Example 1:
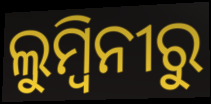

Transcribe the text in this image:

ଲୁମ୍ବିନୀରୁ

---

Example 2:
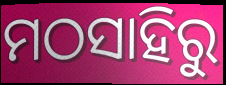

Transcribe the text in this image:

ମଠସାହିରୁ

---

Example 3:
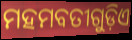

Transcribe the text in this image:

ମହମବତୀଗୁଡ଼ିଏ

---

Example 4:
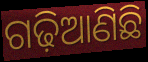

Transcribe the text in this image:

ଗଢ଼ିଆଣିଛି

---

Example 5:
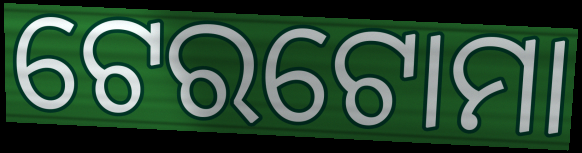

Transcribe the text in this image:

ଟେରଟୋମା